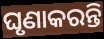
ଘୃଣାକରନ୍ତି